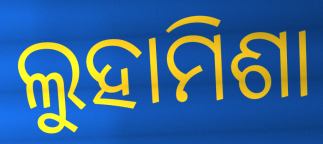
ଲୁହାମିଶା